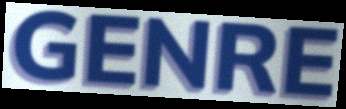
GENRE